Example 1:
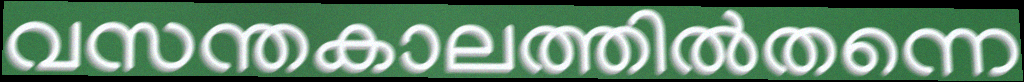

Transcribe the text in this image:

വസന്തകാലത്തിൽതന്നെ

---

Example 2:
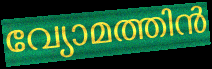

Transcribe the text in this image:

വ്യോമത്തിൻ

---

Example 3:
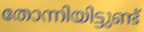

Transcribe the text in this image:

തോന്നിയിട്ടുണ്ട്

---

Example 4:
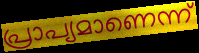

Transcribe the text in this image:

പ്രാപ്യമാണെന്ന്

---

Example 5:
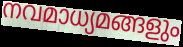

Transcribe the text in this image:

നവമാധ്യമങ്ങളും